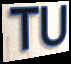
TU